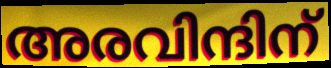
അരവിന്ദിന്